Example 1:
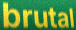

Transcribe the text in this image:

brutal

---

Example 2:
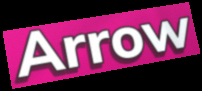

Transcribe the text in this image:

Arrow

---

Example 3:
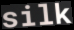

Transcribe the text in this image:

silk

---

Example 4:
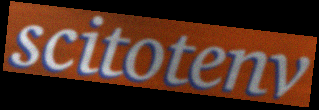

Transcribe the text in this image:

scitotenv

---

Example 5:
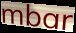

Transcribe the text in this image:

mbar